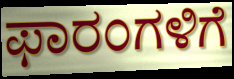
ಫಾರಂಗಳಿಗೆ